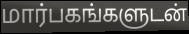
மார்பகங்களுடன்